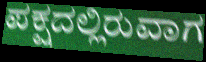
ಪಕ್ಷದಲ್ಲಿರುವಾಗ